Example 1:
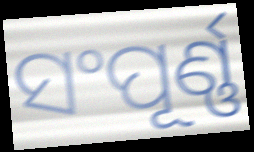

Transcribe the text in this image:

ସଂପୂର୍ଣ୍ଣ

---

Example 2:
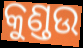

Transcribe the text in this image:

କୁଣ୍ଡଉ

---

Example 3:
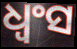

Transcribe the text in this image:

ଧ୍ୱଂସ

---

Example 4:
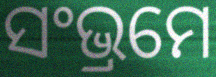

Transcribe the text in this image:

ସଂଭ୍ରମେ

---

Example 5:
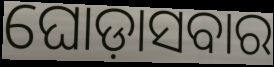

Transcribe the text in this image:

ଘୋଡ଼ାସବାର